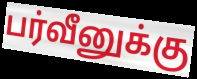
பர்வீனுக்கு